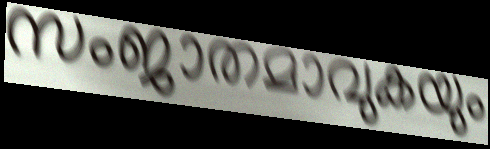
സംജാതമാവുകയും